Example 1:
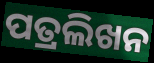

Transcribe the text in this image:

ପତ୍ରଲିଖନ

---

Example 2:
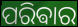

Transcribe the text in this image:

ପରିଵାର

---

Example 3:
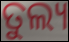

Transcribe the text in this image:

ତୁଲ୍ୟ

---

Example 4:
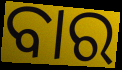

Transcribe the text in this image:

ବାର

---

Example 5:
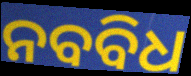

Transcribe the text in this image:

ନବବିଧ